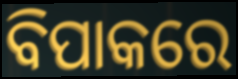
ବିପାକରେ